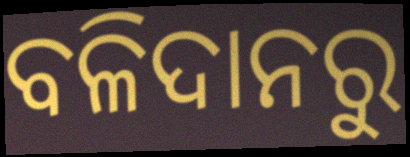
ବଳିଦାନରୁ